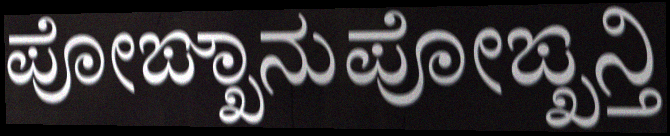
ಪೋಙ್ಖಾನುಪೋಙ್ಖನ್ತಿ